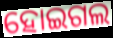
ହୋଇଗଲ